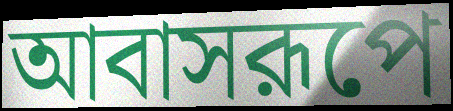
আবাসরূপে